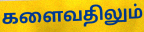
களைவதிலும்